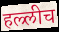
हल्लीच